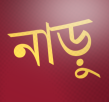
নাড়ু